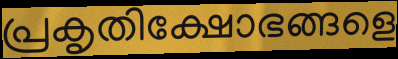
പ്രകൃതിക്ഷോഭങ്ങളെ